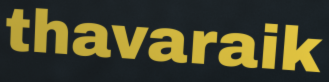
thavaraik